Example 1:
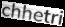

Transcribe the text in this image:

chhetri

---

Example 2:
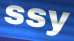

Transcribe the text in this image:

ssy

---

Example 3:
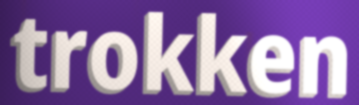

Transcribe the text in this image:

trokken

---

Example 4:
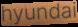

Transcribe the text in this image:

hyundai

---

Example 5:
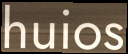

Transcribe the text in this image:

huios